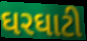
ઘરઘાટી